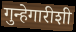
गुन्हेगारीशी